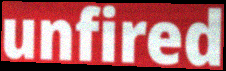
unfired